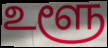
உளூ